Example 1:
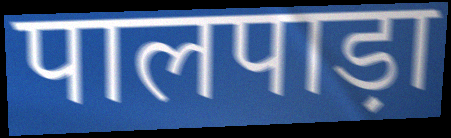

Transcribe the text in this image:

पालपाड़ा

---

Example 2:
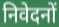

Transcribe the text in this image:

निवेदनों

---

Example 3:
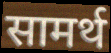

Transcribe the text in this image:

सामर्थ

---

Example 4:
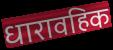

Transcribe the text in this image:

धारावहिक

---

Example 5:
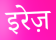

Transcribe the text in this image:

इरेज़